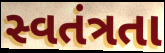
સ્વતંત્રતા